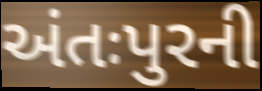
અંતઃપુરની